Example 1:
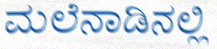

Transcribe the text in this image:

ಮಲೆನಾಡಿನಲ್ಲಿ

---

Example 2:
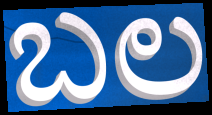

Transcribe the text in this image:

ಬಲ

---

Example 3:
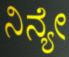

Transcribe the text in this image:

ನಿನ್ಯೇ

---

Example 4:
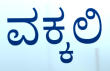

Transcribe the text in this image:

ವಕ್ಕಲಿ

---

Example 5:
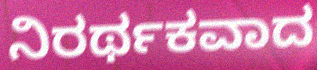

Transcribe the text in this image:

ನಿರರ್ಥಕವಾದ